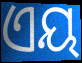
ଏୟ